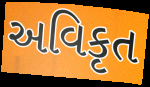
અવિકૃત